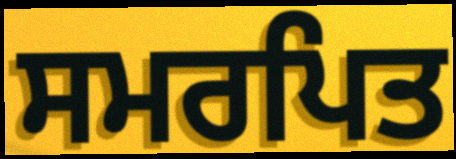
ਸਮਰਪਿਤ